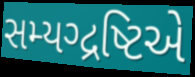
સમ્યગ્દ્રષ્ટિએ